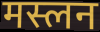
मस्लन